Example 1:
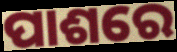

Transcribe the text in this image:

ପାଶରେ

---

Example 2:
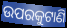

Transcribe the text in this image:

ଉପରକୁଟାଣି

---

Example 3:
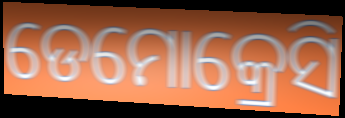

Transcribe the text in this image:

ଡେମୋକ୍ରେସି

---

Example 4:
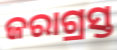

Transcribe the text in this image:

ଜରାଗ୍ରସ୍ତ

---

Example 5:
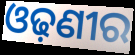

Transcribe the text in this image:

ଓଢ଼ଣୀର